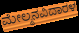
ಮೇಲ್ಮನವಿದಾರಳ